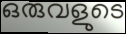
ഒരുവളുടെ